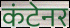
कंटेनर